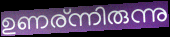
ഉണര്ന്നിരുന്നു